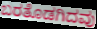
ಬರತೊಡಗಿದವು